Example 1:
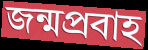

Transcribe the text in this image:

জন্মপ্রবাহ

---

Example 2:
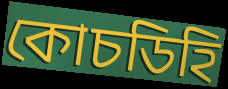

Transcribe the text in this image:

কোচডিহি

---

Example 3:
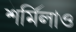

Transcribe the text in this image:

শর্মিলাও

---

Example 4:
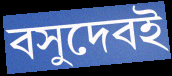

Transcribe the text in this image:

বসুদেবই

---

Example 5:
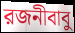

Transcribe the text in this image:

রজনীবাবু